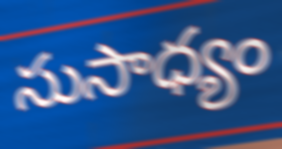
సుసాధ్యం